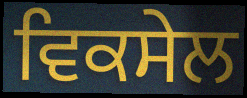
ਵਿਕਸੇਲ